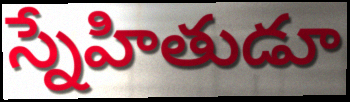
స్నేహితుడూ